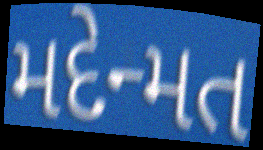
મદેન્મત